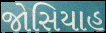
જોસિયાહ